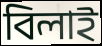
বিলাই